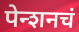
पेन्शनचं